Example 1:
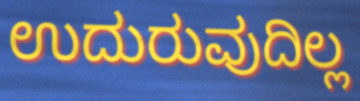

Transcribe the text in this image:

ಉದುರುವುದಿಲ್ಲ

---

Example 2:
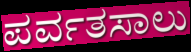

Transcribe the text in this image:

ಪರ್ವತಸಾಲು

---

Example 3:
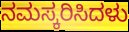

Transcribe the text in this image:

ನಮಸ್ಕರಿಸಿದಳು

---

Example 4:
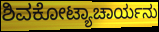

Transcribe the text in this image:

ಶಿವಕೋಟ್ಯಾಚಾರ್ಯನು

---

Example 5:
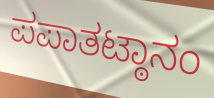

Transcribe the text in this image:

ಪಪಾತಟ್ಠಾನಂ